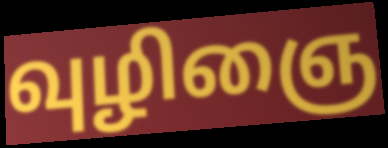
வுழிஞை